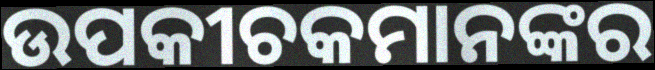
ଉପକୀଚକମାନଙ୍କର